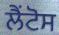
ਲੈਂਟੋਸ